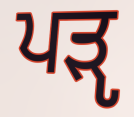
ਪੜੵ